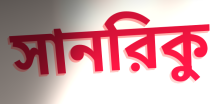
সানরিকু